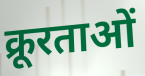
क्रूरताओं